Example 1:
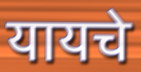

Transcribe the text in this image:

यायचे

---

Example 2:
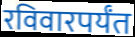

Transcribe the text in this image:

रविवारपर्यंत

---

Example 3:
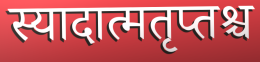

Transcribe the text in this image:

स्यादात्मतृप्तश्च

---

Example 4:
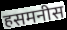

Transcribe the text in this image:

हसमनीस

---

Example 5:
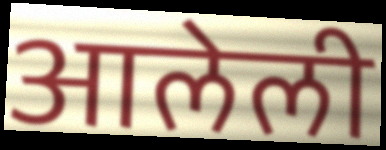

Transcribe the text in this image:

आलेली